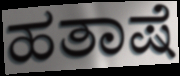
ಹತಾಷೆ